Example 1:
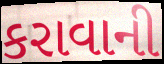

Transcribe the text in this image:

કરાવાની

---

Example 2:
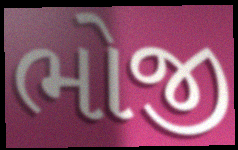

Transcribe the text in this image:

ભોજી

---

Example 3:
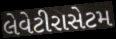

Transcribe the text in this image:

લેવેટીરાસેટમ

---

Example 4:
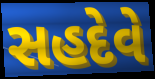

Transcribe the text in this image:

સહદેવે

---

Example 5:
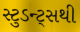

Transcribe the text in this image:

સ્ટુડન્ટ્સથી